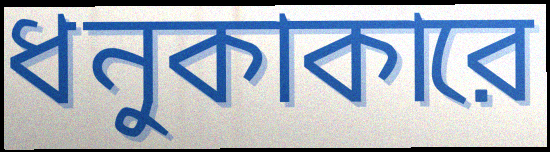
ধনুকাকারে